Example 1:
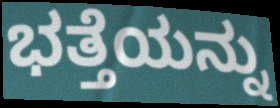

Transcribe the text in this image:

ಭತ್ತೆಯನ್ನು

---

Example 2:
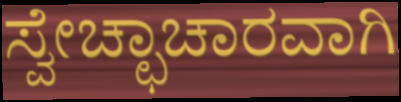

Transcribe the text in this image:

ಸ್ವೇಚ್ಛಾಚಾರವಾಗಿ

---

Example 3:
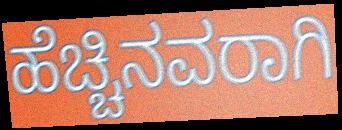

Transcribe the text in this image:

ಹೆಚ್ಚಿನವರಾಗಿ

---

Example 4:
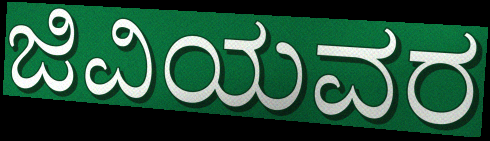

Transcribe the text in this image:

ಜಿವಿಯವರ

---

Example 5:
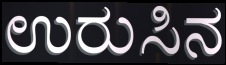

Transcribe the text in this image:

ಉರುಸಿನ